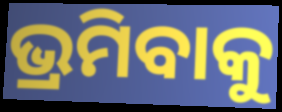
ଭ୍ରମିବାକୁ